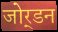
जोर्डन